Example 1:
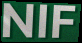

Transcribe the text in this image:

NIF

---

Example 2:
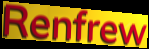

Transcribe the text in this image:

Renfrew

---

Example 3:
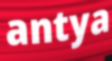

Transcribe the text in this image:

antya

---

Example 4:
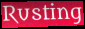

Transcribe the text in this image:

Rusting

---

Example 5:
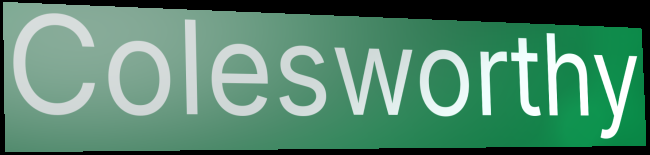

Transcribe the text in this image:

Colesworthy